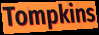
Tompkins